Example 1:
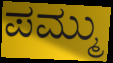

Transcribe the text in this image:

ಪಮ್ಮು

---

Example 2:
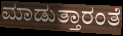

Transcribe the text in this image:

ಮಾಡುತ್ತಾರಂತೆ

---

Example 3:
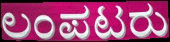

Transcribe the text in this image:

ಲಂಪಟರು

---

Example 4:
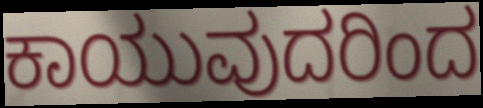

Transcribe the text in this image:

ಕಾಯುವುದರಿಂದ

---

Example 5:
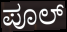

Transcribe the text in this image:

ಪೂಲ್